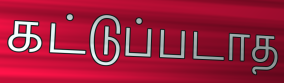
கட்டுப்படாத